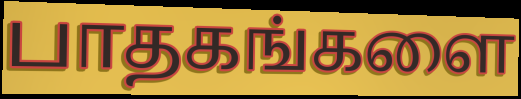
பாதகங்களை